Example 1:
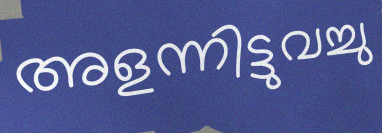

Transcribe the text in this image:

അളന്നിട്ടുവച്ചു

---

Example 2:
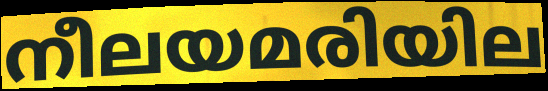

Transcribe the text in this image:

നീലയമരിയില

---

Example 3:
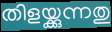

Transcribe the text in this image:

തിളയ്ക്കുന്നതു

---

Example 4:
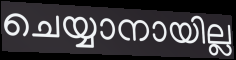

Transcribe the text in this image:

ചെയ്യാനായില്ല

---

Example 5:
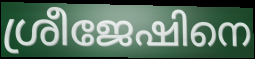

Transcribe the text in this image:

ശ്രീജേഷിനെ